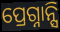
ପ୍ରେଗ୍ନାନ୍ସି